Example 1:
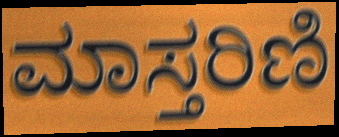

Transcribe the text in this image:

ಮಾಸ್ತರಿಣಿ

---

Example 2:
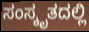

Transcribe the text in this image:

ಸಂಸ್ಕೃತದಲ್ಲಿ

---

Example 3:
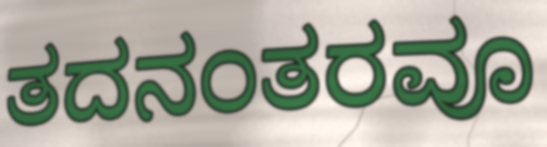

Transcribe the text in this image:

ತದನಂತರವೂ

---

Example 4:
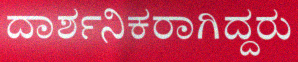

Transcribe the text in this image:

ದಾರ್ಶನಿಕರಾಗಿದ್ದರು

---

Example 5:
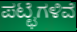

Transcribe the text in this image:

ಪಟ್ಟೆಗಳಿವೆ